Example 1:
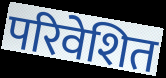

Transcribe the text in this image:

परिवेशित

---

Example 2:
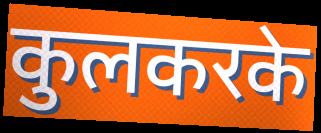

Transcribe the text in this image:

कुलकरके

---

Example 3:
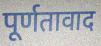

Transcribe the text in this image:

पूर्णतावाद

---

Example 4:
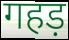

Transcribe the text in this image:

गहड़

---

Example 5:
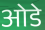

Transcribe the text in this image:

ओडे